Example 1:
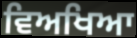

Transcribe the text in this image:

ਵਿਅਖਿਆ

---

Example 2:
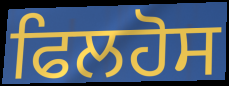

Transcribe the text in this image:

ਫਿਲਹੋਸ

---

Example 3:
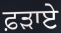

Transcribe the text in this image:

ਫ਼ੜਾਏ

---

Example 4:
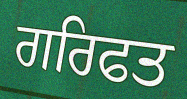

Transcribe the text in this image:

ਗਰਿਫਤ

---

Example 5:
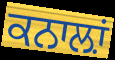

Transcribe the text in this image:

ਕਨਾਲ਼ਾਂ